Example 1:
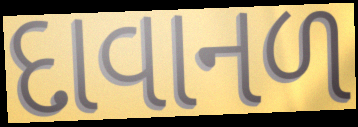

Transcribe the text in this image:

દાવાનળ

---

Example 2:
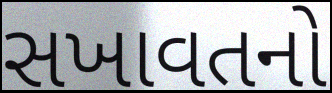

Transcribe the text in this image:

સખાવતનો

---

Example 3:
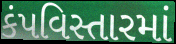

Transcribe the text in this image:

કંપવિસ્તારમાં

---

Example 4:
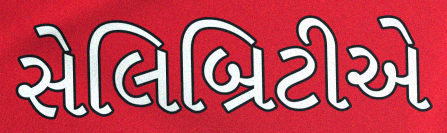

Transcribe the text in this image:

સેલિબ્રિટીએ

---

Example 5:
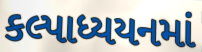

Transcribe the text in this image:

કલ્પાધ્યયનમાં